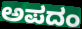
ಅಪದಂ